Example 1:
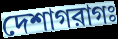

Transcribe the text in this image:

দেশাগরাগঃ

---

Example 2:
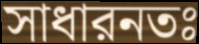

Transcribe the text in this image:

সাধারনতঃ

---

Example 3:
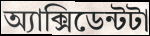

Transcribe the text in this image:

অ্যাক্সিডেন্টটা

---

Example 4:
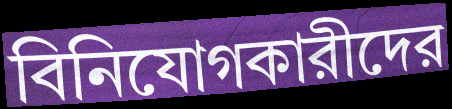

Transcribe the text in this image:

বিনিযোগকারীদের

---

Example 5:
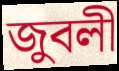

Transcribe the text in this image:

জুবলী